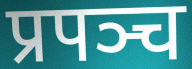
प्रपञ्च